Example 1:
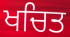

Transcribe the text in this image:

ਖਚਿਤ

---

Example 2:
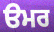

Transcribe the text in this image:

ੳਮਰ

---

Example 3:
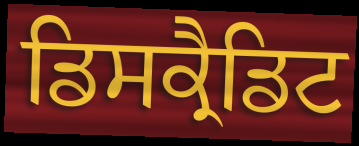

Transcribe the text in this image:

ਡਿਸਕ੍ਰੈਡਿਟ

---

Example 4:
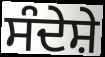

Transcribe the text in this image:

ਸੰਦੇਸ਼ੇ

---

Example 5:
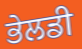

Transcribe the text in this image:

ਭੇਲਡੀ